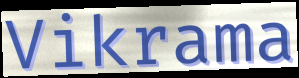
Vikrama